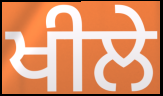
ਖੀਲੇ